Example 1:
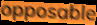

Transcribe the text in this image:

opposable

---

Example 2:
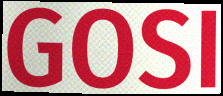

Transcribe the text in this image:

GOSI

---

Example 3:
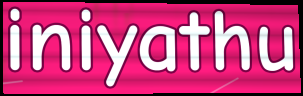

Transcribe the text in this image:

iniyathu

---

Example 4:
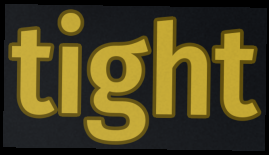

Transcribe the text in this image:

tight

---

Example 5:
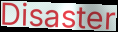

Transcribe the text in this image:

Disaster